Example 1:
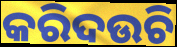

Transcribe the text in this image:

କରିଦଉଚି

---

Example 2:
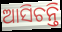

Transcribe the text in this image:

ଆସିଚନ୍ତି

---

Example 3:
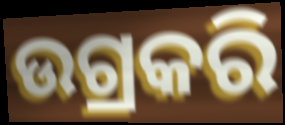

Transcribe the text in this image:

ଉଗ୍ରକରି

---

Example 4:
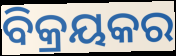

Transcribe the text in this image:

ବିକ୍ରୟକର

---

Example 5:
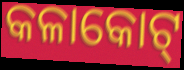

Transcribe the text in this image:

କଳାକୋଟ୍